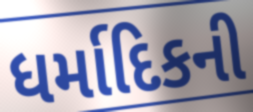
ધર્માદિકની